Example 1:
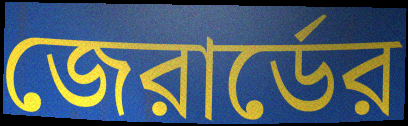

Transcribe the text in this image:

জেরার্ডের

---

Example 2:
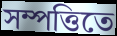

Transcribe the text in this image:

সম্পত্তিতে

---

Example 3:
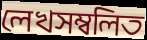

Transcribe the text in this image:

লেখসম্বলিত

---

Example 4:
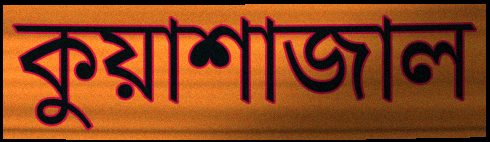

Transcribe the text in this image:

কুয়াশাজাল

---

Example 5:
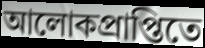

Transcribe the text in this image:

আলোকপ্রাপ্তিতে